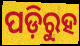
ପଡ଼ିରୁହ